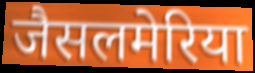
जैसलमेरिया